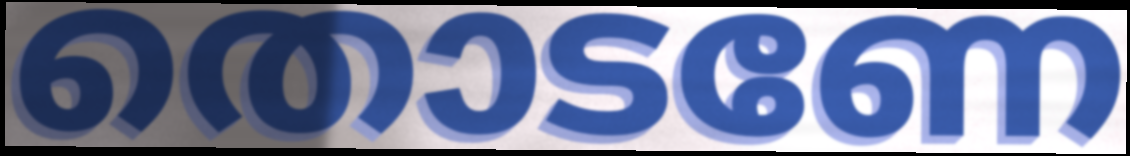
തൊടണേ